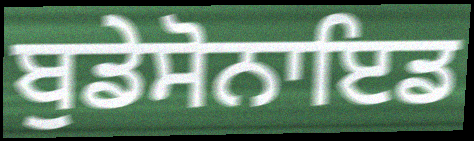
ਬੁਡੇਸੋਨਾਇਡ